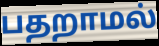
பதறாமல்